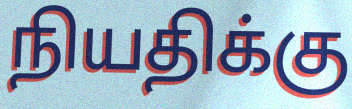
நியதிக்கு